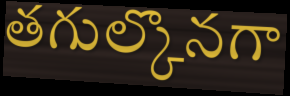
తగుల్కొనగా